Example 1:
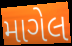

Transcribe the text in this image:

માગેલ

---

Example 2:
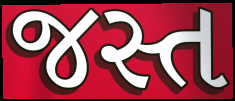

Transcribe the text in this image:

જસ્ત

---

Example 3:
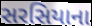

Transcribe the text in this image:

સરસિયાના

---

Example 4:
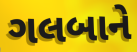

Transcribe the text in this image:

ગલબાને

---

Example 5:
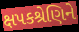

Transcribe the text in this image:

ક્ષપકશ્રેણિને